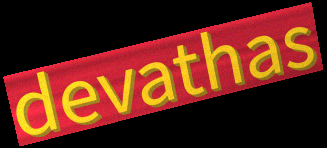
devathas